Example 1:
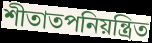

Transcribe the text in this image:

শীতাতপনিয়ন্ত্রিত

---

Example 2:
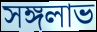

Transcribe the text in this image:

সঙ্গলাভ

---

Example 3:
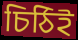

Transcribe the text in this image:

চিঠিই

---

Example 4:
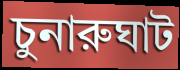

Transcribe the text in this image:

চুনারুঘাট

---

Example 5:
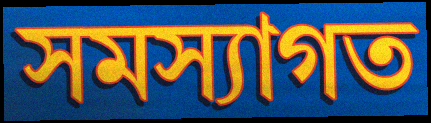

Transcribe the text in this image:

সমস্যাগত